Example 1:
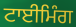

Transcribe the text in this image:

ਟਾਈਮਿੰਗ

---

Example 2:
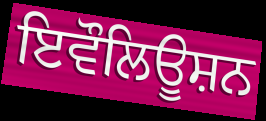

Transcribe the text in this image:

ਇਵੌਲਿਊਸ਼ਨ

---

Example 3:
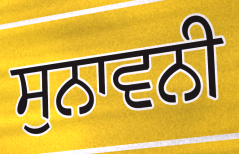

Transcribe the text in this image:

ਸੁਨਾਵਨੀ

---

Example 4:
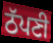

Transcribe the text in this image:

ਠੱਪਣੀ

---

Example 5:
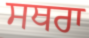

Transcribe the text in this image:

ਸਥਰਾ